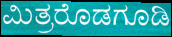
ಮಿತ್ರರೊಡಗೂಡಿ